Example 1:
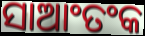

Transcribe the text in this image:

ସାଆଂତଂକ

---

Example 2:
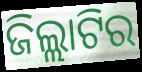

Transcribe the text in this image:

ଜିଲ୍ଲାଟିର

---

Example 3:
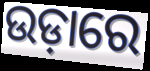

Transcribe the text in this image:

ଉଡ଼ାରେ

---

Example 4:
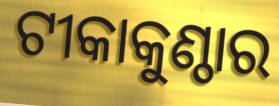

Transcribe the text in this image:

ଟୀକାକୁଣ୍ଠାର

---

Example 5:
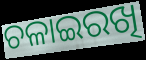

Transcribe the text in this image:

ଚଳାଇରଖି